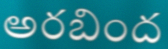
అరబింద